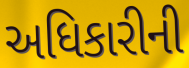
અધિકારીની